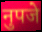
नुपजे